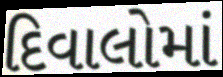
દિવાલોમાં